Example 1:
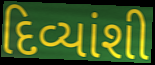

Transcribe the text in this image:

દિવ્યાંશી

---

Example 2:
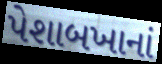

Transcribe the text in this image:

પેશાબખાનાં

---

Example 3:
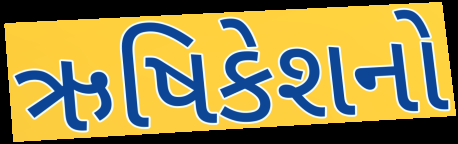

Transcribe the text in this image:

ઋષિકેશનો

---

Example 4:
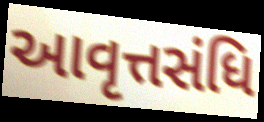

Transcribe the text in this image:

આવૃત્તસંધિ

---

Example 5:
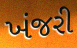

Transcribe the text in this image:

ખંજરી